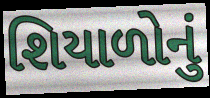
શિયાળોનું